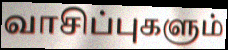
வாசிப்புகளும்